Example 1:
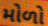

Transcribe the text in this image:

મોળો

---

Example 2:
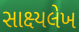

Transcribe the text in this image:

સાક્ષ્યલેખ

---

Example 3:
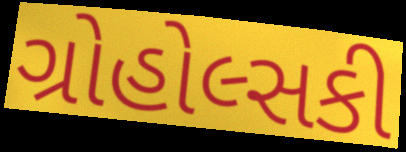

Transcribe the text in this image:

ગ્રોહોલ્સકી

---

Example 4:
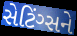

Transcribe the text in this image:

સેટિંગ્સને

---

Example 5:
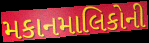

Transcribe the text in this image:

મકાનમાલિકોની